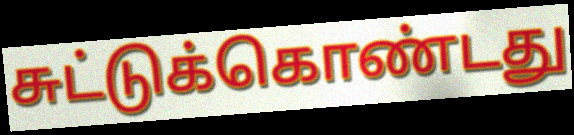
சுட்டுக்கொண்டது